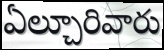
ఏల్చూరివారు